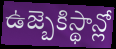
ఉజ్బెకిస్థాన్లో